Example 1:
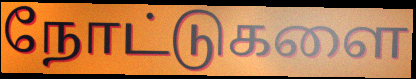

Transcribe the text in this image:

நோட்டுகளை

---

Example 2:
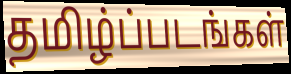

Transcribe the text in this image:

தமிழ்ப்படங்கள்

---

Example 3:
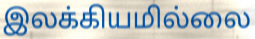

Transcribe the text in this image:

இலக்கியமில்லை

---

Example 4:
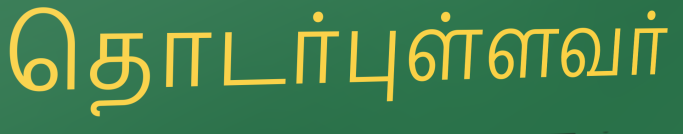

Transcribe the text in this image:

தொடர்புள்ளவர்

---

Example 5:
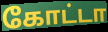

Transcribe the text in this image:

கோட்டா